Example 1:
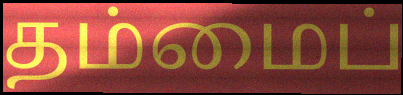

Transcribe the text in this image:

தம்மைப்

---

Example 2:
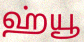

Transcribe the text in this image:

ஹ்யூ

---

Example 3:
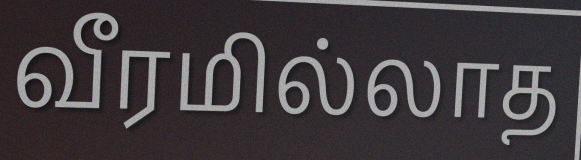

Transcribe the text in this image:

வீரமில்லாத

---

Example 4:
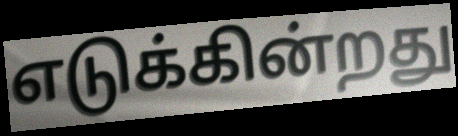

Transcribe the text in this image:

எடுக்கின்றது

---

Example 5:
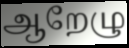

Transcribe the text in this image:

ஆறேழு